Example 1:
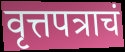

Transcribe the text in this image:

वृत्तपत्राचं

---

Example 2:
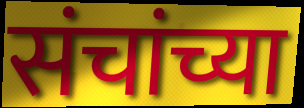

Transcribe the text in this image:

संचांच्या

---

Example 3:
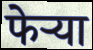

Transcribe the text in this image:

फेऱ्या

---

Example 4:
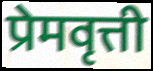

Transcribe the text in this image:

प्रेमवृत्ती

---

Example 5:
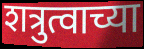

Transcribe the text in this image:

शत्रुत्वाच्या